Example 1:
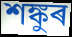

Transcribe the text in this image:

শঙ্কুৰ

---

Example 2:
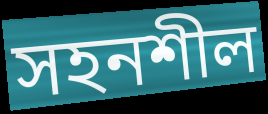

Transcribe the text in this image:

সহনশীল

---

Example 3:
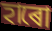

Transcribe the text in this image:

হাৰো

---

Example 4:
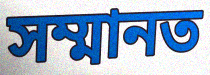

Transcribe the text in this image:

সম্মানত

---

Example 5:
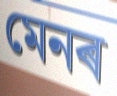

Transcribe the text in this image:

মেনৰ